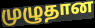
முழுதான